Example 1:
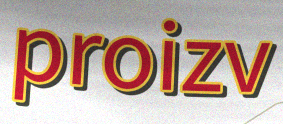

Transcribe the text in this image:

proizv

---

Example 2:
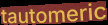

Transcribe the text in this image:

tautomeric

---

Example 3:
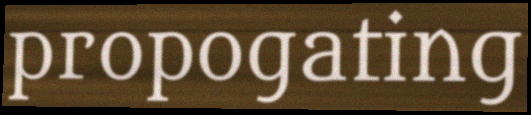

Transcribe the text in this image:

propogating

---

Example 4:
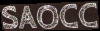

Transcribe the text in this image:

SAOCC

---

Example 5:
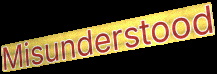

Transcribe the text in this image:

Misunderstood